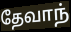
தேவாந்